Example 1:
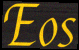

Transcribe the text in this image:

Eos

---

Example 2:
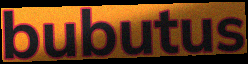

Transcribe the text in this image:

bubutus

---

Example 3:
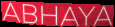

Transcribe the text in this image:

ABHAYA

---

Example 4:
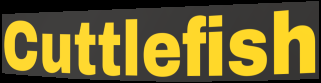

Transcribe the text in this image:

Cuttlefish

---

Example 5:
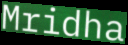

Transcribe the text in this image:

Mridha